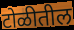
टोळीतील